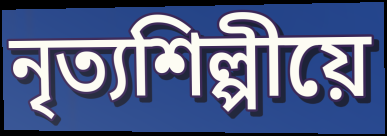
নৃত্যশিল্পীয়ে